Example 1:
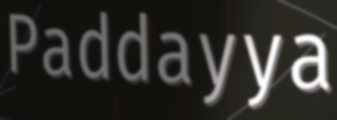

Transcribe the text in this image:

Paddayya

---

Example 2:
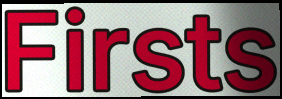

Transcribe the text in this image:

Firsts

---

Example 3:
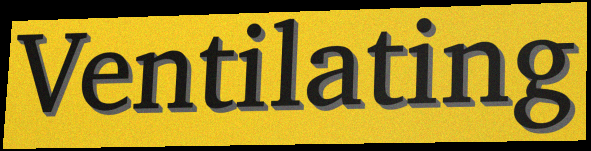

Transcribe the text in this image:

Ventilating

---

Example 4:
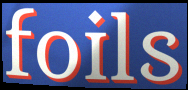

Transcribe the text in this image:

foils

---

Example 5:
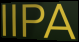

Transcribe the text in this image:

IIPA